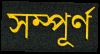
সম্পূর্ণ